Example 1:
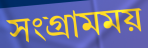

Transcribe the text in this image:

সংগ্রামময়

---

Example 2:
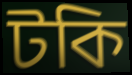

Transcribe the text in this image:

টকি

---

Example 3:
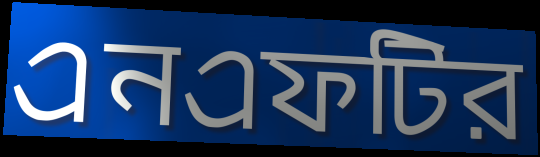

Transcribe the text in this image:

এনএফটির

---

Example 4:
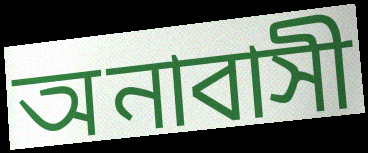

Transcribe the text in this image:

অনাবাসী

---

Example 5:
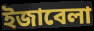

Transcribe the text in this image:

ইজাবেলা